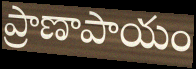
ప్రాణాపాయం